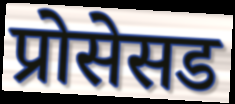
प्रोसेसड